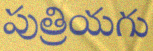
పుత్రియగు